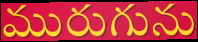
మురుగును